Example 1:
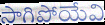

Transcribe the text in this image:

సాగిపోయేవి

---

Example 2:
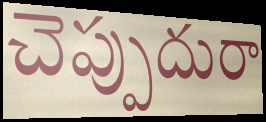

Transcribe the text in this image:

చెప్పుదురా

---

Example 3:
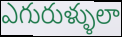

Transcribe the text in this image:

ఎగురుళ్ళులా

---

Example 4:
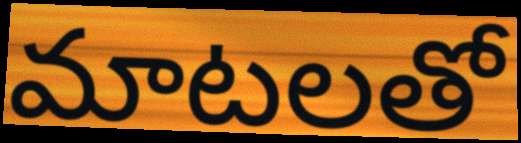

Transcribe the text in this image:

మాటలతో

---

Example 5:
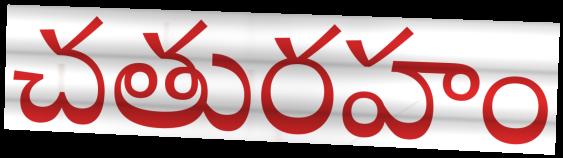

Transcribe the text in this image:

చతురహం